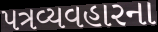
પત્રવ્યવહારના